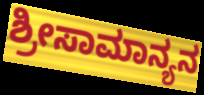
ಶ್ರೀಸಾಮಾನ್ಯನ